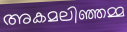
അകമലിഞ്ഞമ്മ